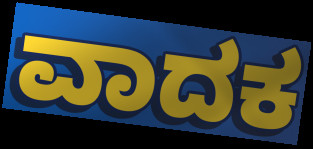
ವಾದಕ